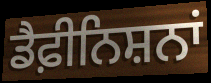
ਡੈਫ਼ੀਨਿਸ਼ਨਾਂ